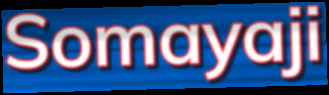
Somayaji